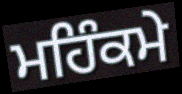
ਮਹਿੰਕਮੇ